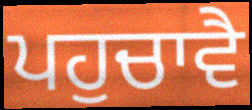
ਪਹੁਚਾਵੈ